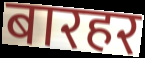
बारहर